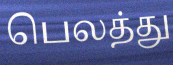
பெலத்து